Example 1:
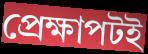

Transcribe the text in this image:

প্রেক্ষাপটই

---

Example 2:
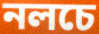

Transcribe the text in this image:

নলচে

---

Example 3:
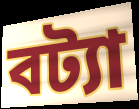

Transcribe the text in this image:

বট্যা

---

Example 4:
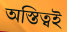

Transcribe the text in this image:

অস্তিত্বই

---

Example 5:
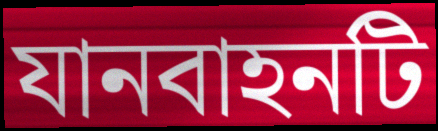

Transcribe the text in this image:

যানবাহনটি